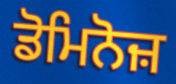
ਡੋਮਿਨੋਜ਼